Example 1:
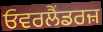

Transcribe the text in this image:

ਓਵਰਲੈਂਡਰਜ਼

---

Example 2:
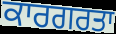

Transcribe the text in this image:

ਕਾਰਗਰਤਾ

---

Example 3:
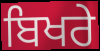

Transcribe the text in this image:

ਬਿਖਰੇ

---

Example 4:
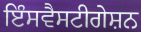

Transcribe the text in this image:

ਇੰਸਵੈਸਟੀਗੇਸ਼ਨ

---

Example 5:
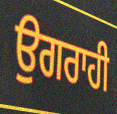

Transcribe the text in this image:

ਉਗਰਾਹੀ